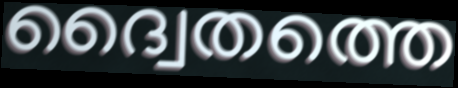
ദ്വൈതത്തെ